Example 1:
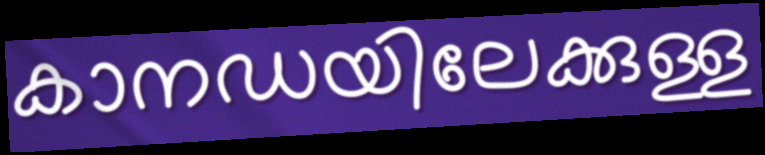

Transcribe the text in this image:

കാനഡയിലേക്കുള്ള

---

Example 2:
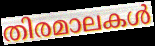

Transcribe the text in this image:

തിരമാലകൾ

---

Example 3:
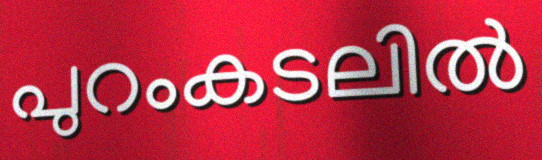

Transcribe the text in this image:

പുറംകടലിൽ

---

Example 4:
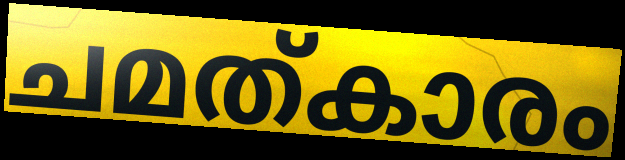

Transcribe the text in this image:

ചമത്കാരം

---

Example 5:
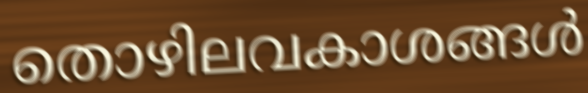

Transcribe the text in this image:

തൊഴിലവകാശങ്ങൾ